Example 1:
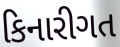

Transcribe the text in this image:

કિનારીગત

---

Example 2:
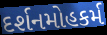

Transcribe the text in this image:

દર્શનમોહકર્મ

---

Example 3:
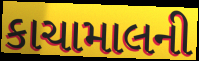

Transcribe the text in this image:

કાચામાલની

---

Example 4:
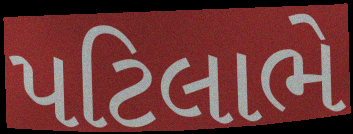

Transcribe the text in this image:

પટિલાભે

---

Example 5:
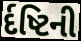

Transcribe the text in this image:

ર્દષ્ટિની